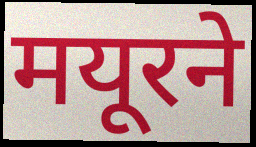
मयूरने